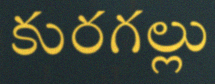
కురగల్లు